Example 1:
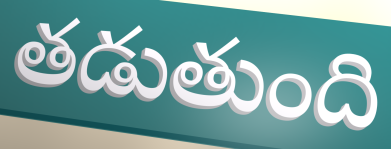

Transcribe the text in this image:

తడుతుంది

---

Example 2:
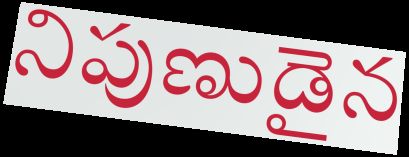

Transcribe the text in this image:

నిపుణుడైన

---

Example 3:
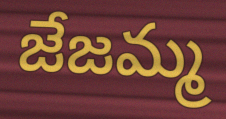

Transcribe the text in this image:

జేజమ్మ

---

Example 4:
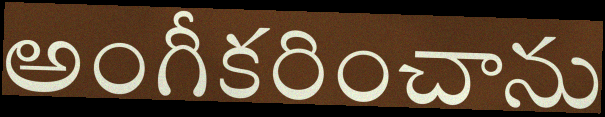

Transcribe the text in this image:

అంగీకరించాను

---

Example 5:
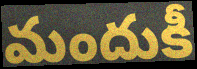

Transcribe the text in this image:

మందుకీ